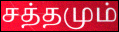
சத்தமும்